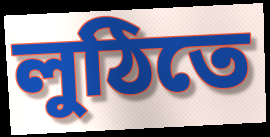
লুঠিতে